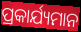
ପ୍ରକାର୍ଯ୍ୟମାନ